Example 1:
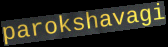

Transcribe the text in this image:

parokshavagi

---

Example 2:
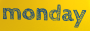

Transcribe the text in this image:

monday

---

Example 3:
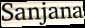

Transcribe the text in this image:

Sanjana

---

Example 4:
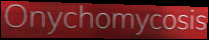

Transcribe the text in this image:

Onychomycosis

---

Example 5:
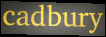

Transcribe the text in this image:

cadbury